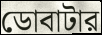
ডোবাটার